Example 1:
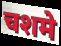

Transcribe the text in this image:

चशमे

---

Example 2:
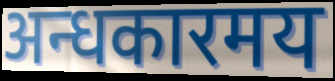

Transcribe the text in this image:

अन्धकारमय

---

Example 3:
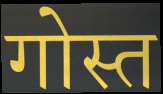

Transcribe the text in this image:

गोस्त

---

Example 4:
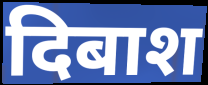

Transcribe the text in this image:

दिबाश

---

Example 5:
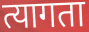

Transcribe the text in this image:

त्यागता